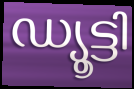
ഡ്യൂട്ടി